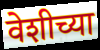
वेशीच्या